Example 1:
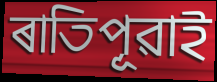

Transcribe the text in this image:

ৰাতিপূৱাই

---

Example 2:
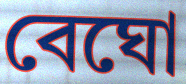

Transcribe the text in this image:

বেঘো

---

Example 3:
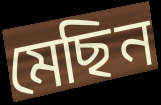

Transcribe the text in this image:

মেছিন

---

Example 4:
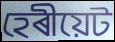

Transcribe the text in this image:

হেৰীয়েট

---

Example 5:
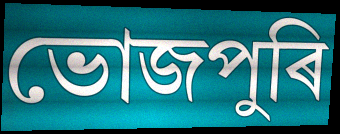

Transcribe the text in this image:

ভোজপুৰি